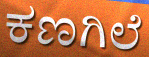
ಕಣಗಿಲೆ